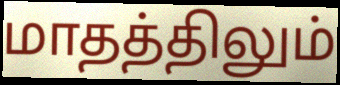
மாதத்திலும்